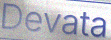
Devata